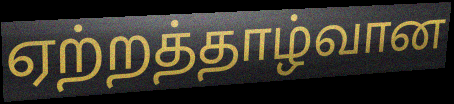
ஏற்றத்தாழ்வான